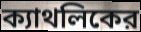
ক্যাথলিকের